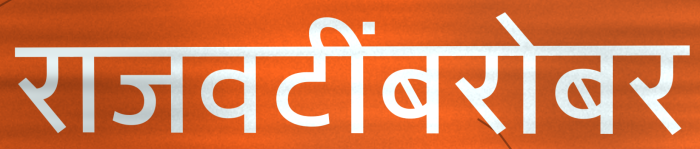
राजवटींबरोबर